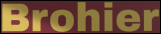
Brohier